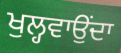
ਖੁਲ੍ਹਵਾਉਂਦਾ